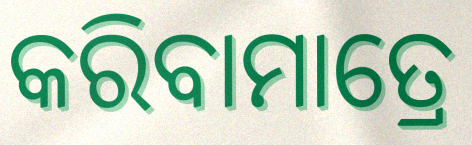
କରିବାମାତ୍ରେ